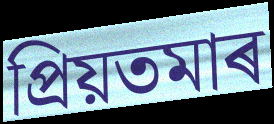
প্ৰিয়তমাৰ